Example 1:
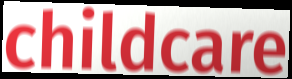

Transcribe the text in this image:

childcare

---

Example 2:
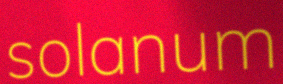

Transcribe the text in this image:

solanum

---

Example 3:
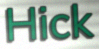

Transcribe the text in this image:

Hick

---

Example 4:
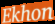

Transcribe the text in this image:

Ekhon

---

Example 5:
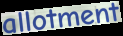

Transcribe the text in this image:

allotment